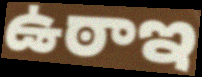
ఉఠాఇ